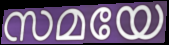
സമയേ